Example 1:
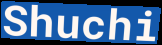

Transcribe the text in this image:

Shuchi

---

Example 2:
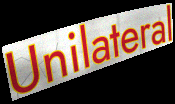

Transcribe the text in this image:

Unilateral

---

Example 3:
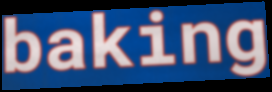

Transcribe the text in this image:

baking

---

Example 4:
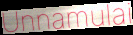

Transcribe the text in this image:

Unnamulai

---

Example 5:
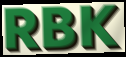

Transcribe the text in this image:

RBK